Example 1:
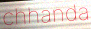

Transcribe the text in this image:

chhanda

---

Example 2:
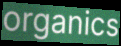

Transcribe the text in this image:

organics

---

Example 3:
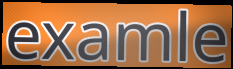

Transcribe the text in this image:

examle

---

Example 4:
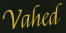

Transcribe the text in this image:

Vahed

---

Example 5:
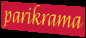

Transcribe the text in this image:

parikrama